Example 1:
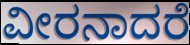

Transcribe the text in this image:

ವೀರನಾದರೆ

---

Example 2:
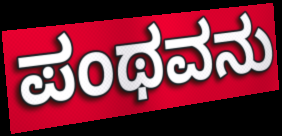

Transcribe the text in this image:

ಪಂಥವನು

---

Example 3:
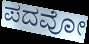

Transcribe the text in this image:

ಪದವೋ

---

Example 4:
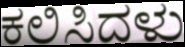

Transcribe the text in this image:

ಕಲಿಸಿದಳು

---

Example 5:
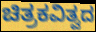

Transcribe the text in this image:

ಚಿತ್ರಕವಿತ್ವದ